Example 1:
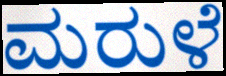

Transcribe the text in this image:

ಮರುಳೆ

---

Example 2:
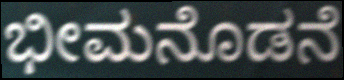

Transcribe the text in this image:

ಭೀಮನೊಡನೆ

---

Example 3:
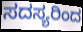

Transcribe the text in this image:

ಸದಸ್ಯರಿಂದ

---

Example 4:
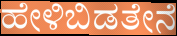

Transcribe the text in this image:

ಹೇಳಿಬಿಡತೇನೆ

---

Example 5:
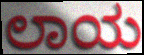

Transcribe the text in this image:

ಲಾಯ